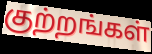
குற்றங்கள்